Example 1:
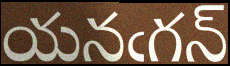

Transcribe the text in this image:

యనఁగన్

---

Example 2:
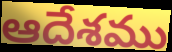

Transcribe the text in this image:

ఆదేశము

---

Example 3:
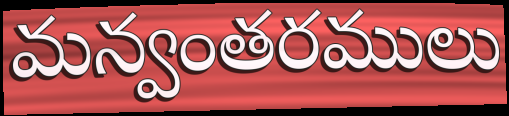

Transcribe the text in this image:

మన్వంతరములు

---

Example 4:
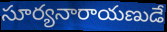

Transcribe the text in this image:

సూర్యనారాయణుడే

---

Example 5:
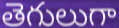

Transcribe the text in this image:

తెగులుగా